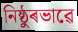
নিষ্ঠুৰভাৱে